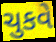
ચુકવે